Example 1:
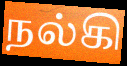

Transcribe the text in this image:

நல்கி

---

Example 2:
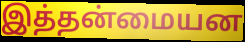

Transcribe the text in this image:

இத்தன்மையன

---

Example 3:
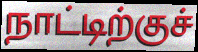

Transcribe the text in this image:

நாட்டிற்குச்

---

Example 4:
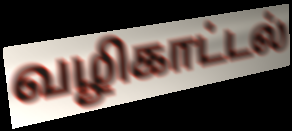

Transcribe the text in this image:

வழிகாட்டல்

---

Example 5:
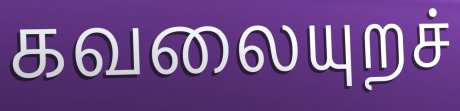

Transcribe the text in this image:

கவலையுறச்